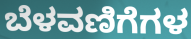
ಬೆಳವಣಿಗೆಗಳ